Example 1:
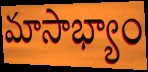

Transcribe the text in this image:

మాసాభ్యాం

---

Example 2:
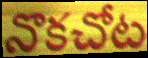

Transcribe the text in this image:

నొకచోట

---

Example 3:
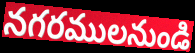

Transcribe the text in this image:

నగరములనుండి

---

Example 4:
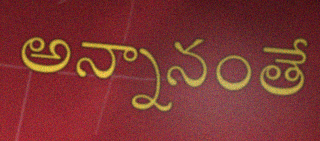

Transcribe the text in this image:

అన్నానంతే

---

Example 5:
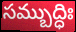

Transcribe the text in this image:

సమ్బుద్ధిః